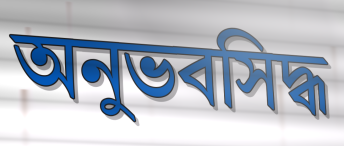
অনুভবসিদ্ধ